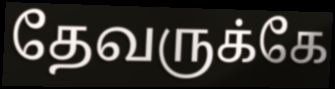
தேவருக்கே